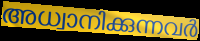
അധ്വാനിക്കുന്നവർ